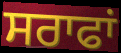
ਸਰਾਫਾਂ